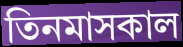
তিনমাসকাল